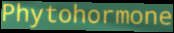
Phytohormone